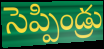
సెప్పిండ్రు